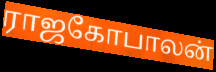
ராஜகோபாலன்